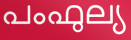
പംഫുല്യ